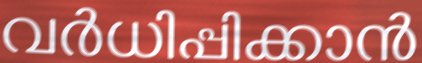
വർധിപ്പിക്കാൻ